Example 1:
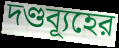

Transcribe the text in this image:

দণ্ডব্যূহের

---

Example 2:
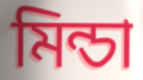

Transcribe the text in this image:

মিন্ডা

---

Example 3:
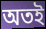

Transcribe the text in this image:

অতই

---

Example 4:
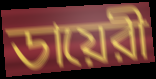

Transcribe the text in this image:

ডায়েরী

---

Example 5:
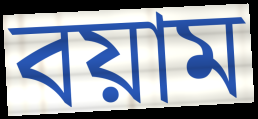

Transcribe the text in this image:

বয়াম